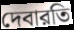
দেবারতি